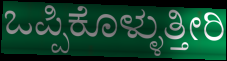
ಒಪ್ಪಿಕೊಳ್ಳುತ್ತೀರಿ